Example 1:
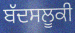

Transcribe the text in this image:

ਬੱਦਸਲੂਕੀ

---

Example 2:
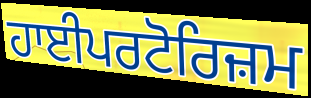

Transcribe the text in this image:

ਹਾਈਪਰਟੋਰਿਜ਼ਮ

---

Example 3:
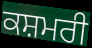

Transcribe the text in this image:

ਕਸ਼ਮਰੀ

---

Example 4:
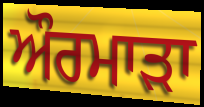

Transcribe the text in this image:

ਔਰਮਾੜਾ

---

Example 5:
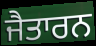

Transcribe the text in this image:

ਜੈਤਾਰਨ